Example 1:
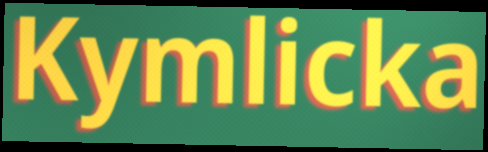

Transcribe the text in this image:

Kymlicka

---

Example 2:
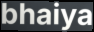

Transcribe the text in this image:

bhaiya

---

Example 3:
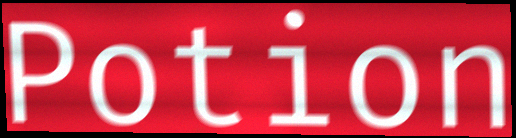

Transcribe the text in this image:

Potion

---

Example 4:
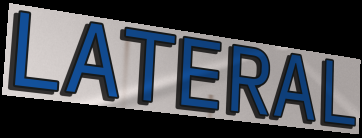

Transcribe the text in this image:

LATERAL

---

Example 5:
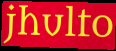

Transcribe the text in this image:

jhulto